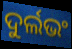
ଦୁର୍ଲଭଂ